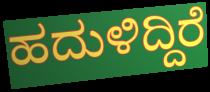
ಹದುಳಿದ್ದಿರೆ